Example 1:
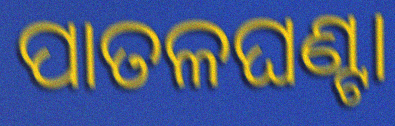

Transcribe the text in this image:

ପାତଳଘଣ୍ଟା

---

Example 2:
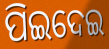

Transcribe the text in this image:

ପିଇଦେଇ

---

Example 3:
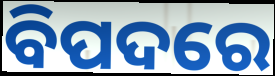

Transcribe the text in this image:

ବିପଦରେ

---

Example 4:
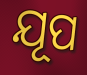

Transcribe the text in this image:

ଯୂପ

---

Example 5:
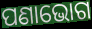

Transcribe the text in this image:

ପଣାଭୋଗ